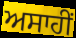
ਅਸਾਹੀਂ